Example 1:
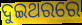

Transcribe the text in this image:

ଦୁଇଥରରେ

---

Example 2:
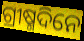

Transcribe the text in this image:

ଗ୍ରୀଷ୍ମଦିନେ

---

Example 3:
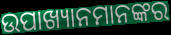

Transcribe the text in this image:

ଉପାଖ୍ୟାନମାନଙ୍କର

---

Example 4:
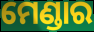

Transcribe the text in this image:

ମେଣ୍ଡାର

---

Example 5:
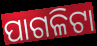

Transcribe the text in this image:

ପାଗଳିଟା